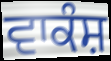
ਵਾਕੰਸ਼